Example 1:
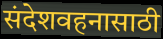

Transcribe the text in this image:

संदेशवहनासाठी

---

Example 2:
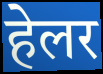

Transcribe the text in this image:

हेलर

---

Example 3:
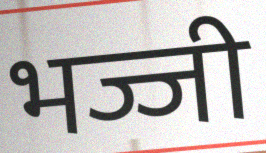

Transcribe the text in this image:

भज्जी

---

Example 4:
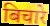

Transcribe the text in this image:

बिचारे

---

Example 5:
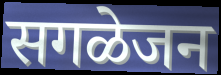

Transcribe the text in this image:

सगळेजन